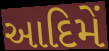
આદિમેં